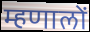
म्हणालों